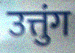
उत्तुंग